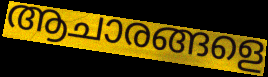
ആചാരങ്ങളെ